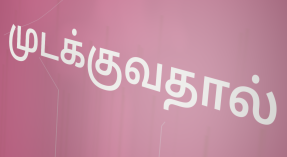
முடக்குவதால்